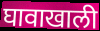
घावाखाली